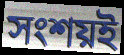
সংশয়ই